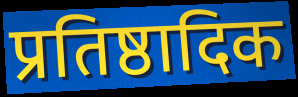
प्रतिष्ठादिक